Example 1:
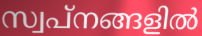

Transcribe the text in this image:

സ്വപ്നങ്ങളിൽ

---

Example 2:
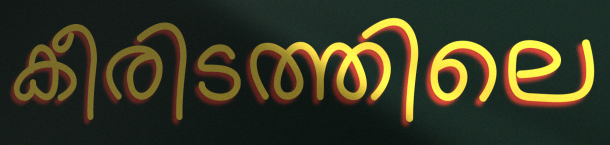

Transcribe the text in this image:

കീരിടത്തിലെ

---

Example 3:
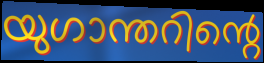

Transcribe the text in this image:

യുഗാന്തറിന്റെ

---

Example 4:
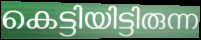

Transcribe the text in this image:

കെട്ടിയിട്ടിരുന്ന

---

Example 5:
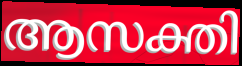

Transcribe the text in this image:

ആസക്തി